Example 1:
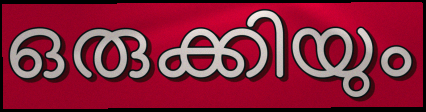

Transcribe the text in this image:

ഒരുക്കിയും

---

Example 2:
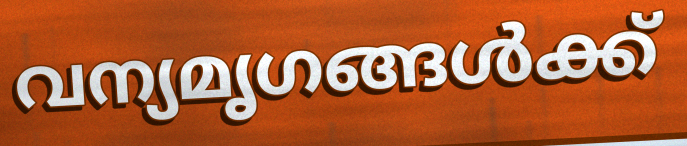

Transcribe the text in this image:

വന്യമൃഗങ്ങൾക്ക്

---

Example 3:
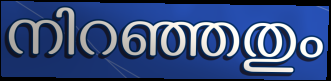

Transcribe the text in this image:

നിറഞ്ഞതും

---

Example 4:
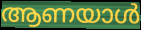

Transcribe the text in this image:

ആണയാൾ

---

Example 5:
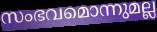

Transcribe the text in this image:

സംഭവമൊന്നുമല്ല